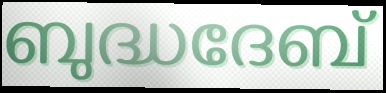
ബുദ്ധദേബ്